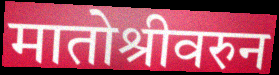
मातोश्रीवरुन